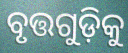
ବୃତ୍ତଗୁଡ଼ିକୁ